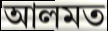
আলমত